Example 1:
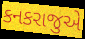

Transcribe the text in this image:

કનકરાજુએ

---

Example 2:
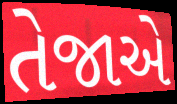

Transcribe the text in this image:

તેજાએ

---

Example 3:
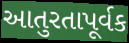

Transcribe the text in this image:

આતુરતાપૂર્વક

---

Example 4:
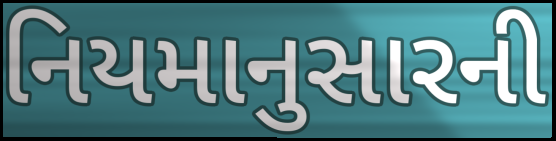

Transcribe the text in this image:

નિયમાનુસારની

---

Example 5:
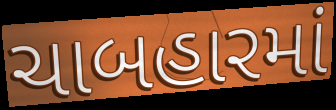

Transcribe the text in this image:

ચાબહારમાં